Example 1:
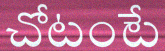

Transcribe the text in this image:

చోటంటే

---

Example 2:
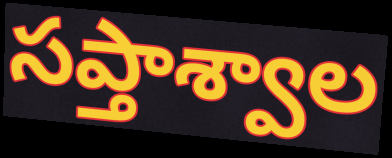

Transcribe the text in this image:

సప్తాశ్వాల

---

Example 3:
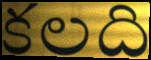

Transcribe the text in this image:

కలది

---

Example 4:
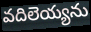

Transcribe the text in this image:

వదిలెయ్యను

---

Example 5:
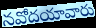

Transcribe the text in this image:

నవోదయావారు